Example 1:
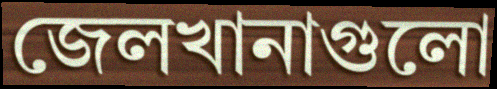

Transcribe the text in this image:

জেলখানাগুলো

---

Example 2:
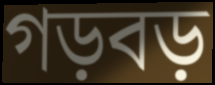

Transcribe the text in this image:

গড়বড়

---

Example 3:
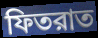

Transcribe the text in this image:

ফিতরাত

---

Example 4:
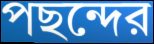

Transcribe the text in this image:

পছন্দের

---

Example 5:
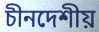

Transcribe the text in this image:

চীনদেশীয়